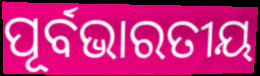
ପୂର୍ବଭାରତୀୟ